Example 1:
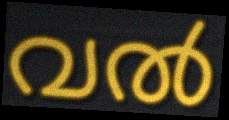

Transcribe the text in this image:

വൽ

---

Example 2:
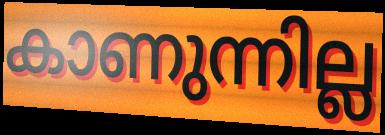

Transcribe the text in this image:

കാണുന്നില്ല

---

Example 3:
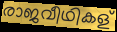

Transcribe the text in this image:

രാജവീഥികള്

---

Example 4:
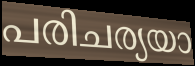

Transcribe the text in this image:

പരിചര്യയാ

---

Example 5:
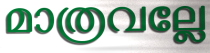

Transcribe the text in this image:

മാത്രവല്ലേ